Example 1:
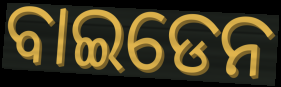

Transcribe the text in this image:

ବାଇଡେନ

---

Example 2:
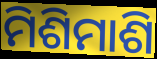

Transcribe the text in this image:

ମିଶିମାଶି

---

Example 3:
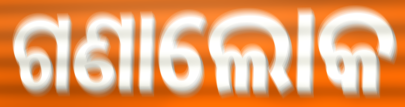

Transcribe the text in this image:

ଗଣାଲୋକ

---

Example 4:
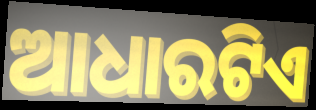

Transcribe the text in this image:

ଆଧାରଟିଏ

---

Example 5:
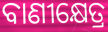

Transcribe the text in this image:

ବାଣୀକ୍ଷେତ୍ର